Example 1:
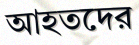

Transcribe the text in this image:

আহতদের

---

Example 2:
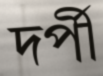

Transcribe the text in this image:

দর্পী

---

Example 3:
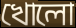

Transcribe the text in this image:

খোলো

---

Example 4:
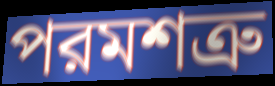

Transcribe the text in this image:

পরমশত্রু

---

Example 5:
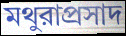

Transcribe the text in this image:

মথুরাপ্রসাদ